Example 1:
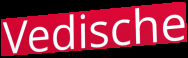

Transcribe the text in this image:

Vedische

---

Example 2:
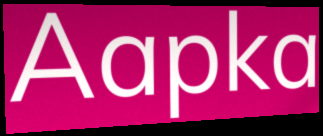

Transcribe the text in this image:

Aapka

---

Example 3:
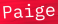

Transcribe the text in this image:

Paige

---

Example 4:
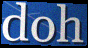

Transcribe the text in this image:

doh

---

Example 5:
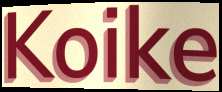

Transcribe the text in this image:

Koike